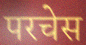
परचेस